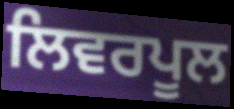
ਲਿਵਰਪੂਲ